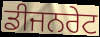
ਡੀਜਨਰੇਟ